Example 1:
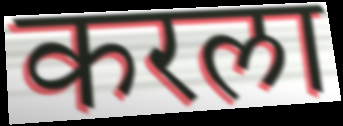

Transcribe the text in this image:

करला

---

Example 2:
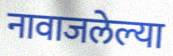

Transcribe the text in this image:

नावाजलेल्या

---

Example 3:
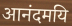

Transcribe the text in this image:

आनंदमयि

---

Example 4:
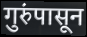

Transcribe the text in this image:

गुरुंपासून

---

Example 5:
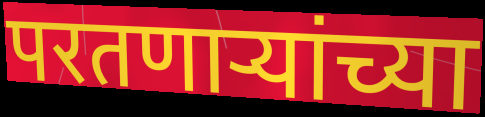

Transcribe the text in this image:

परतणाऱ्यांच्या